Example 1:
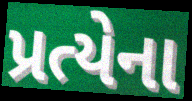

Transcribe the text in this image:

પ્રત્યેના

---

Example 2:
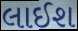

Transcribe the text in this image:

લાઈશ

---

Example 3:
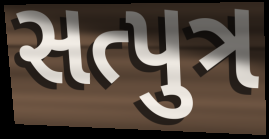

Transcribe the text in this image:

સત્પુત્ર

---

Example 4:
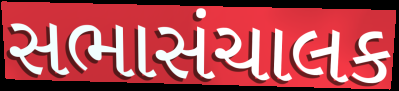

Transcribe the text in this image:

સભાસંચાલક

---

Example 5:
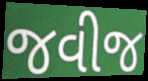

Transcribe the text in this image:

જવીજ